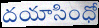
దయాసింధో